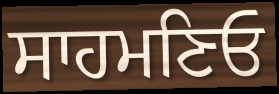
ਸਾਹਮਣਿਓ